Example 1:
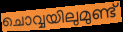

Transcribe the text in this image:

ചൊവ്വയിലുമുണ്ട്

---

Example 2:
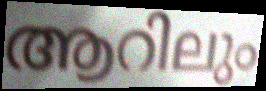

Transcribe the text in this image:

ആറിലും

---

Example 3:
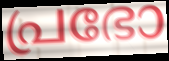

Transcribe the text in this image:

പ്രഭോ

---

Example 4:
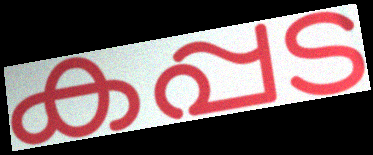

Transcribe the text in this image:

കപ്പട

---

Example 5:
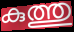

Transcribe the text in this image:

കുത്തു